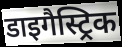
डाइगैस्ट्रिक